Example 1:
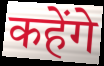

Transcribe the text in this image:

कहेंगे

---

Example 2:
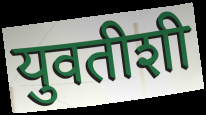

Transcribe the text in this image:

युवतीशी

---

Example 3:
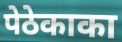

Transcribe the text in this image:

पेठेकाका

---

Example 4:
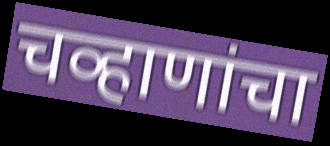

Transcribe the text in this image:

चव्हाणांचा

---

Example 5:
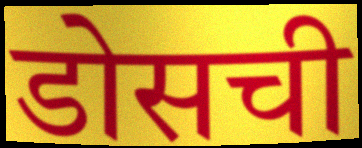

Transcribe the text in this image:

डोसची